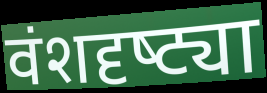
वंशदृष्ट्या